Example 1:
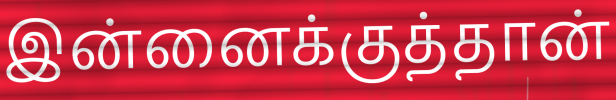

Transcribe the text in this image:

இன்னைக்குத்தான்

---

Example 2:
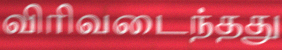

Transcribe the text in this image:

விரிவடைந்தது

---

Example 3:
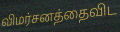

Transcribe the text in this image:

விமர்சனத்தைவிட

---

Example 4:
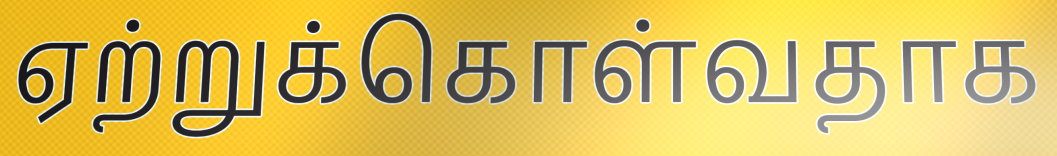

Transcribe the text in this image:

ஏற்றுக்கொள்வதாக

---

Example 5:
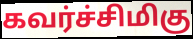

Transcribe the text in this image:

கவர்ச்சிமிகு